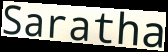
Saratha